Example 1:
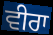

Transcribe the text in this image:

ਵੀਰਾ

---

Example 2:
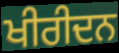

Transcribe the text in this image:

ਖੀਰੀਦਨ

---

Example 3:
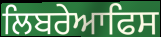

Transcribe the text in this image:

ਲਿਬਰੇਆਫਿਸ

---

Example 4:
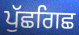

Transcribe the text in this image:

ਪੁੱਛਗਿਛ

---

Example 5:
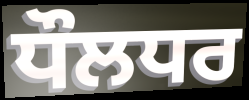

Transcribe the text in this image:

ਧੌਲਧਰ